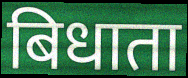
बिधाता